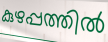
കുഴപ്പത്തിൽ